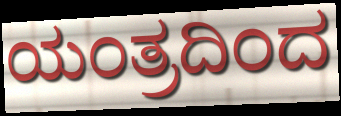
ಯಂತ್ರದಿಂದ